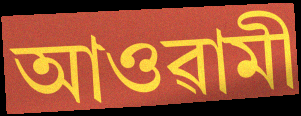
আওৱামী